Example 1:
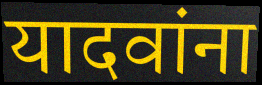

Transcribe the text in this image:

यादवांना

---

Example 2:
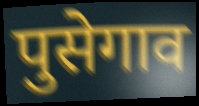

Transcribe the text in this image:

पुसेगाव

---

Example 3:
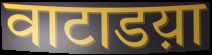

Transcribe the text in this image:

वाटाडय़ा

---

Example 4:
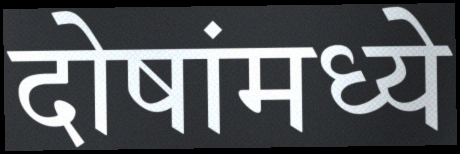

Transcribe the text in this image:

दोषांमध्ये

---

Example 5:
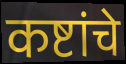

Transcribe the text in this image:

कष्टांचे